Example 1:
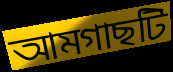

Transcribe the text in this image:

আমগাছটি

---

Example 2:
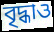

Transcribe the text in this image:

বৃদ্ধাও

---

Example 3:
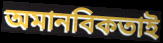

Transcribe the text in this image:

অমানবিকতাই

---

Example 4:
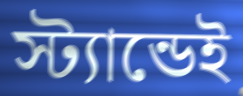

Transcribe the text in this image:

স্ট্যান্ডেই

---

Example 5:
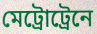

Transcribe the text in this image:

মেট্রোট্রেনে